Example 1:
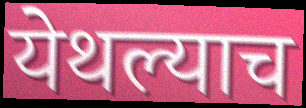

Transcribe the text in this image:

येथल्याच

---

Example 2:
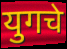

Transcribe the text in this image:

युगचे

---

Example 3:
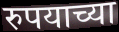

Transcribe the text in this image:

रुपयाच्या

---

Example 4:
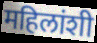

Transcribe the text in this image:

महिलांशी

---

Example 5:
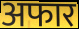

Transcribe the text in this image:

अफार